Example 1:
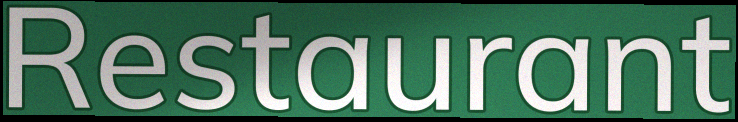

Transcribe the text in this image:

Restaurant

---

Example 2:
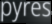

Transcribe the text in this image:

pyres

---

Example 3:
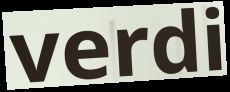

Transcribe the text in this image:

verdi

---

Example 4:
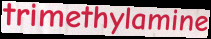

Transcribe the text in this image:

trimethylamine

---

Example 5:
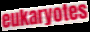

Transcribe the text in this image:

eukaryotes